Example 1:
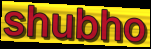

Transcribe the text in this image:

shubho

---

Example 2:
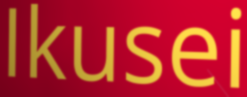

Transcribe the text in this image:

Ikusei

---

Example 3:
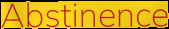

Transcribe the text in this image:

Abstinence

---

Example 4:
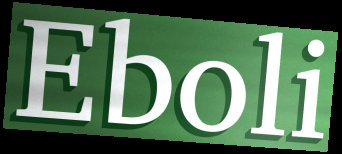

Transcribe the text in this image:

Eboli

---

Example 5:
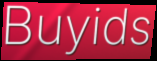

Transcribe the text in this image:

Buyids